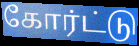
கோர்ட்டு